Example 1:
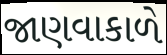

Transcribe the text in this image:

જાણવાકાળે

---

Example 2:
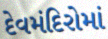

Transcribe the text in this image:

દેવમંદિરોમાં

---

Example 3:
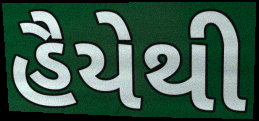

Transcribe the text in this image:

હૈયેથી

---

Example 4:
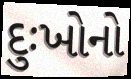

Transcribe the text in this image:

દુઃખોનો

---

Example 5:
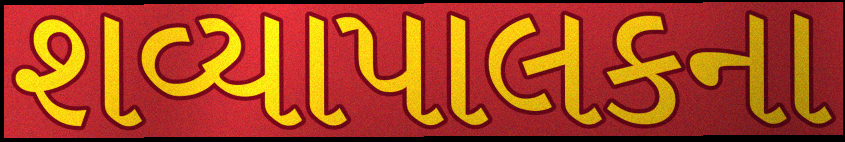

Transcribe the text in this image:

શવ્યાપાલકના